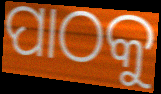
ପାଠକୁ